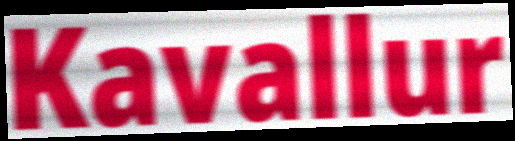
Kavallur